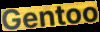
Gentoo